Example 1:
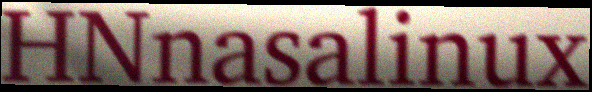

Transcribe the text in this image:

HNnasalinux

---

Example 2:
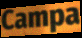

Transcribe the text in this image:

Campa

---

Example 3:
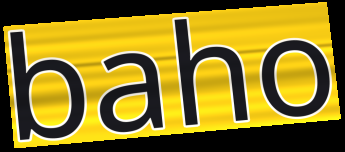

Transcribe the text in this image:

baho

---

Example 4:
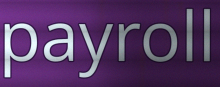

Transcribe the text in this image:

payroll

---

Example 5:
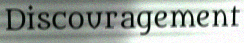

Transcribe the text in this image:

Discouragement